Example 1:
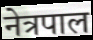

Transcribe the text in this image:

नेत्रपाल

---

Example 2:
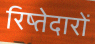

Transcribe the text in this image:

रिष्तेदारों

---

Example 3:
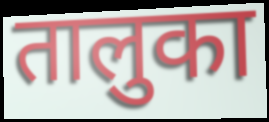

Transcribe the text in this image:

तालुका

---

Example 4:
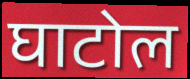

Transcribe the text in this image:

घाटोल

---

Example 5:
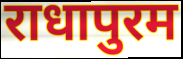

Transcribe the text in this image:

राधापुरम